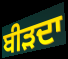
ਬੀੜਦਾ